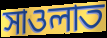
সাওলাত